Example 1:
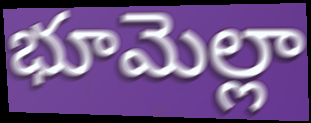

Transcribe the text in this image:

భూమెల్లా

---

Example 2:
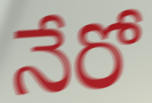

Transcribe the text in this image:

నేరో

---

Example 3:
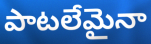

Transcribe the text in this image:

పాటలేమైనా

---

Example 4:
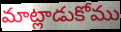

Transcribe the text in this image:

మాట్లాడుకోము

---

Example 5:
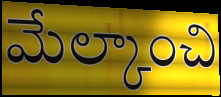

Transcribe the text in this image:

మేల్కాంచి